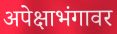
अपेक्षाभंगावर